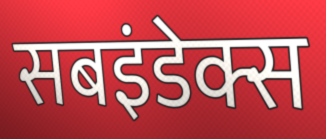
सबइंडेक्स